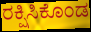
ರಕ್ಷಿಸಿಕೊಂಡ